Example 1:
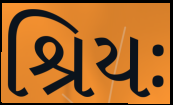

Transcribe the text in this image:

શ્રિયઃ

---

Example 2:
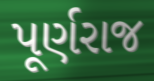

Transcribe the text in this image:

પૂર્ણરાજ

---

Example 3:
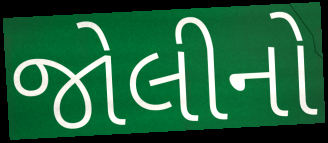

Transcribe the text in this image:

જોલીનો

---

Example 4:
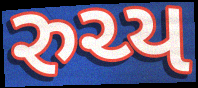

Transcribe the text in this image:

રુચ્ય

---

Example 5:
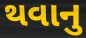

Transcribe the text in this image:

થવાનુ